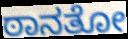
ಠಾನತೋ